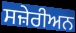
ਸਜ਼ੇਰੀਅਨ